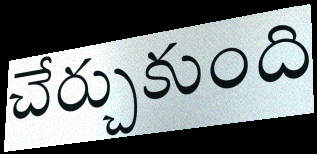
చేర్చుకుంది